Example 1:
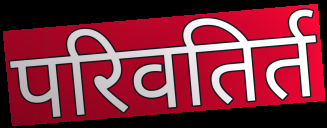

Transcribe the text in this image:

परिवतिर्त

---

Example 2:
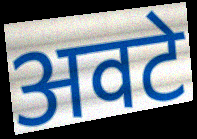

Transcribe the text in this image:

अवटे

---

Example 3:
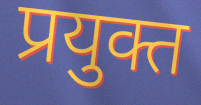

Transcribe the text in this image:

प्रयुक्त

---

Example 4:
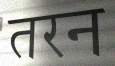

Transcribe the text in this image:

तरन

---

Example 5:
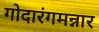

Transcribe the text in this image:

गोदारंगमन्नार